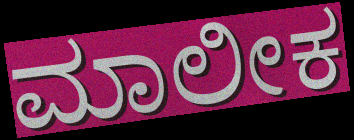
ಮಾಲೀಕ